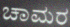
ಚಾಮರ